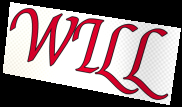
WILL